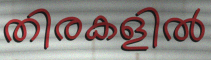
തിരകളിൽ